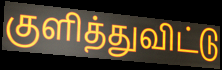
குளித்துவிட்டு